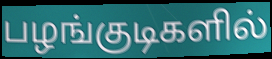
பழங்குடிகளில்